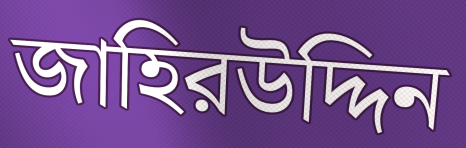
জাহিরউদ্দিন